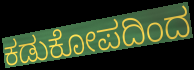
ಕಡುಕೋಪದಿಂದ